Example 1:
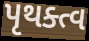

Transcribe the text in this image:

પૃથક્ત્વ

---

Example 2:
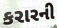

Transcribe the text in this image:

કરારની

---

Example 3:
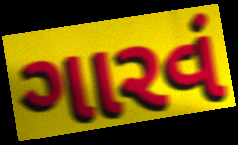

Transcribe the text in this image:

ગારવં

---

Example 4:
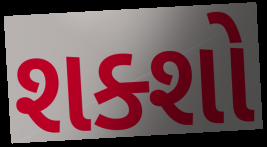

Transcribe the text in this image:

શક્શો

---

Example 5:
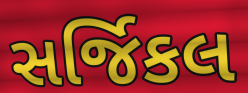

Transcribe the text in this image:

સર્જિકલ